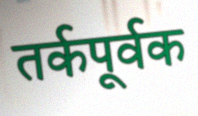
तर्कपूर्वक